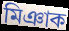
মিঞাক